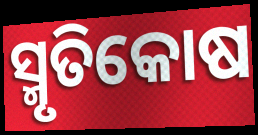
ସ୍ମୃତିକୋଷ